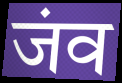
जंव